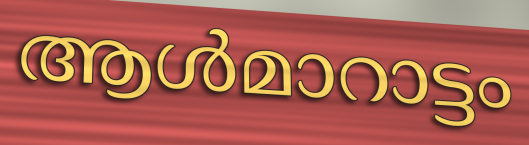
ആൾമാറാട്ടം